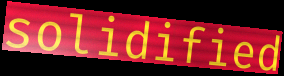
solidified